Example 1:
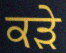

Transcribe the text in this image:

ਕੜੇ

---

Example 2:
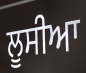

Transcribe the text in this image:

ਲੂਸੀਆ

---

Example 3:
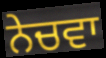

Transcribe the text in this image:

ਨੇਚਵਾ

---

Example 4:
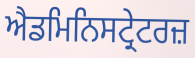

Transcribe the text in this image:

ਐਡਮਿਨਿਸਟ੍ਰੇਟਰਜ਼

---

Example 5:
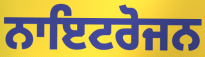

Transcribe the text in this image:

ਨਾਇਟਰੋਜਨ